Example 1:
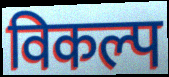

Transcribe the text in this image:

विकल्प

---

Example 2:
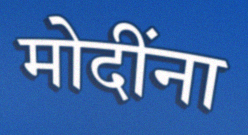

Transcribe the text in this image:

मोदींना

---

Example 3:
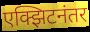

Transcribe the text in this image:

एक्झिटनंतर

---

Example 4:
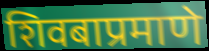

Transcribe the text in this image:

शिवबाप्रमाणे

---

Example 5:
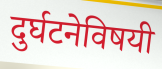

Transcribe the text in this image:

दुर्घटनेविषयी